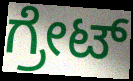
ಗ್ರೇಟ್